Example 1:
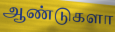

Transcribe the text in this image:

ஆண்டுகளா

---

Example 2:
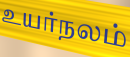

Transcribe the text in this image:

உயர்நலம்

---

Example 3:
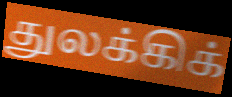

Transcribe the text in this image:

துலக்கிக்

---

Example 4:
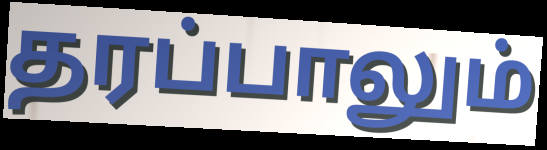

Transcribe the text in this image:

தரப்பாலும்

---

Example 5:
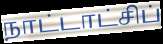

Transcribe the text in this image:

நாட்டாட்சிப்